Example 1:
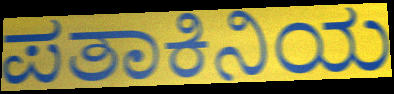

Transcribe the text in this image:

ಪತಾಕಿನಿಯ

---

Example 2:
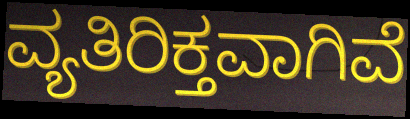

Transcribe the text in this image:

ವ್ಯತಿರಿಕ್ತವಾಗಿವೆ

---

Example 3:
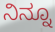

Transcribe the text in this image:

ನಿನ್ನೂ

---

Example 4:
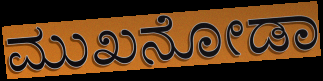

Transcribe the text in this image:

ಮುಖನೋಡಾ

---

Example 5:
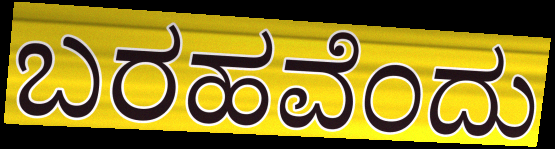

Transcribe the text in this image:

ಬರಹವೆಂದು